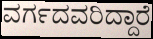
ವರ್ಗದವರಿದ್ದಾರೆ